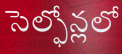
సెల్ఫోన్లలో